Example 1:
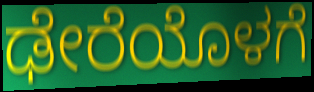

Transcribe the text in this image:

ಢೇರೆಯೊಳಗೆ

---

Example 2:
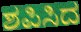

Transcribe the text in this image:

ಶಪಿಸಿದ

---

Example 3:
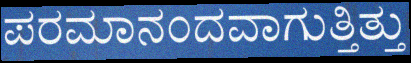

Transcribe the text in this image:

ಪರಮಾನಂದವಾಗುತ್ತಿತ್ತು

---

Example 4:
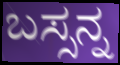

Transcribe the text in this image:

ಬಸ್ಸನ್ನ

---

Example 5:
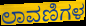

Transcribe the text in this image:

ಲಾವಣಿಗಳ